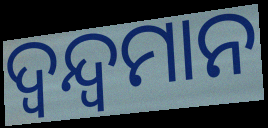
ଦ୍ଵନ୍ଦ୍ଵମାନ